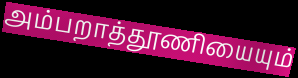
அம்பறாத்தூணியையும்